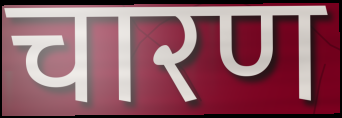
चारण